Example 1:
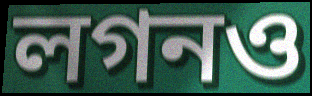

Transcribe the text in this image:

লগনও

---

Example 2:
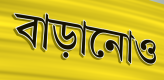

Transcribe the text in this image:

বাড়ানোও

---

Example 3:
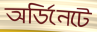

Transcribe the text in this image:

অর্ডিনেটে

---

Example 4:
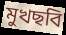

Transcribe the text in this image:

মুখছবি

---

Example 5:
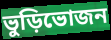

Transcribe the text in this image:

ভুড়িভোজন